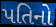
પતિનો